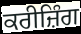
ਕਰੀਜ਼ਿੰਗ